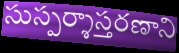
సుస్పర్శాస్తరణాని